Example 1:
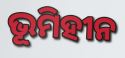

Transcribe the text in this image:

ଭୂମିହୀନ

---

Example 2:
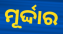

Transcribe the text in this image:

ମୂର୍ଦ୍ଦାର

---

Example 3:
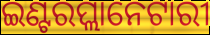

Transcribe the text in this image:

ଇଣ୍ଟରପ୍ଲାନେଟାରୀ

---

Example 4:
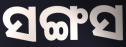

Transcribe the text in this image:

ସଙ୍ଗସ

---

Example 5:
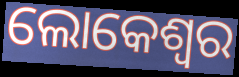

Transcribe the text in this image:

ଲୋକେଶ୍ୱର